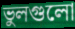
ভুলগুলো